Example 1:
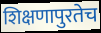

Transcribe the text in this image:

शिक्षणापुरतेच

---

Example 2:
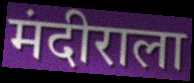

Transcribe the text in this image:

मंदीराला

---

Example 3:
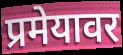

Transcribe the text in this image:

प्रमेयावर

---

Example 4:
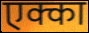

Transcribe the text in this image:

एक्का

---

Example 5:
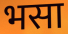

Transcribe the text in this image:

भसा